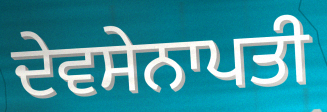
ਦੇਵਸੇਨਾਪਤੀ